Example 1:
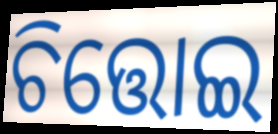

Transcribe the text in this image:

ଚିତ୍ତୋଇ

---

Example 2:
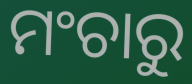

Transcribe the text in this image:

ମଂଚାରୁ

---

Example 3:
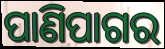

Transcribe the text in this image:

ପାଣିପାଗର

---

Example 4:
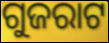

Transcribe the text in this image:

ଗୁଜରାଟ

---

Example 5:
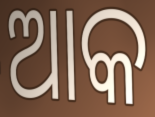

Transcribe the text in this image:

ଆକ